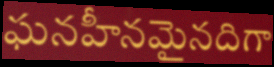
ఘనహీనమైనదిగా